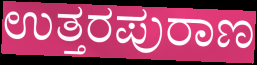
ಉತ್ತರಪುರಾಣ